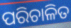
ପରିଚାଳିତ